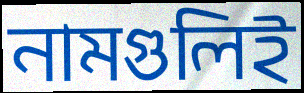
নামগুলিই